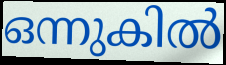
ഒന്നുകിൽ